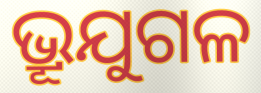
ଭ୍ରୂଯୁଗଳ